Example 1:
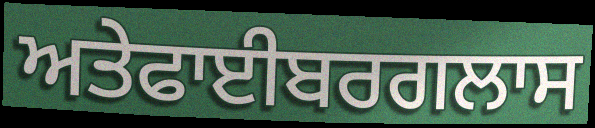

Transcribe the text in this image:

ਅਤੇਫਾਈਬਰਗਲਾਸ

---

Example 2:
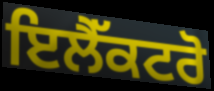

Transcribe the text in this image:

ਇਲੈੱਕਟਰੋ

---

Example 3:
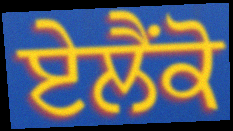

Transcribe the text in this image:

ਏਲੈਂਕੋ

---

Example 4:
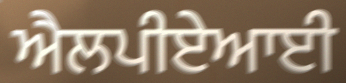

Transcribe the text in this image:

ਐਲਪੀਏਆਈ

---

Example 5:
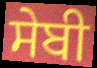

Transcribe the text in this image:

ਸੇਬੀ